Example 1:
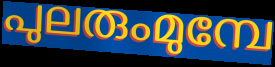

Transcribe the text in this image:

പുലരുംമുമ്പേ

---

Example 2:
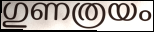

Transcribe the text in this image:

ഗുണത്രയം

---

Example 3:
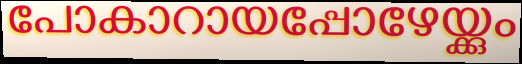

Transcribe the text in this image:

പോകാറായപ്പോഴേയ്ക്കും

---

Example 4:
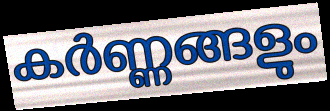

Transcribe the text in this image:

കർണ്ണങ്ങളും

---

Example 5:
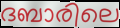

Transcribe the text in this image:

ദബാരിലെ